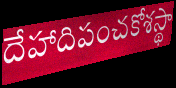
దేహాదిపంచకోశస్థా